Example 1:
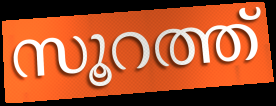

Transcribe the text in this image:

സൂറത്ത്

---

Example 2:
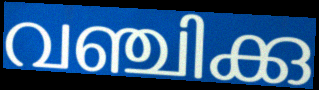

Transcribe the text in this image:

വഞ്ചിക്കു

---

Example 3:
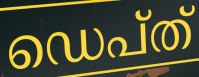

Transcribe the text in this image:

ഡെപ്ത്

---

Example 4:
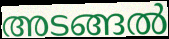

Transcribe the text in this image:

അടങ്ങൽ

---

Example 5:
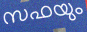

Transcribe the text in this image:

സഫയും